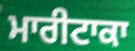
ਮਾਰੀਟਾਕਾ